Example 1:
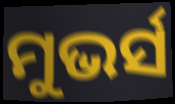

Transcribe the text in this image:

ମୁଭର୍ସ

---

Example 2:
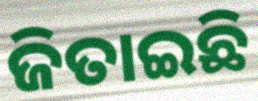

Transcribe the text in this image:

ଜିତାଇଛି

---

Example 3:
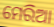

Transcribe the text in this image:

ମେରିଆ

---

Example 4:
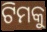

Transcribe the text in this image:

ଟିମକୁ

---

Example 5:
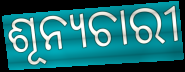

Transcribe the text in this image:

ଶୂନ୍ୟଚାରୀ